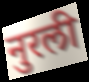
नुरली